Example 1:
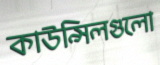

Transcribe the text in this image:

কাউন্সিলগুলো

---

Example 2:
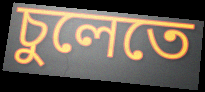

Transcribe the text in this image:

চুলেতে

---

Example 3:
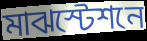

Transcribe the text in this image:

মাঝস্টেশনে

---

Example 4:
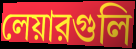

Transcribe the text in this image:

লেয়ারগুলি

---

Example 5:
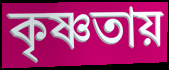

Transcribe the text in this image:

কৃষ্ণতায়